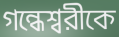
গন্ধেশ্বরীকে